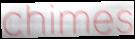
chimes